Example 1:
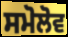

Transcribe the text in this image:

ਸਮੋਲੋਵ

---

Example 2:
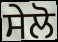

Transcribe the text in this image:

ਸੇਲੋ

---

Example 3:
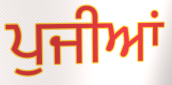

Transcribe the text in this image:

ਪੁਜੀਆਂ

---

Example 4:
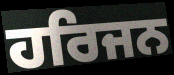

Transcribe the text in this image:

ਹਰਿਜਨ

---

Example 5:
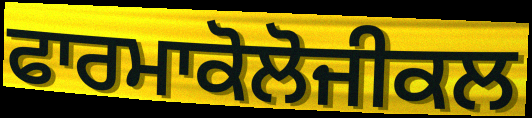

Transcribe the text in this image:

ਫਾਰਮਾਕੋਲੋਜੀਕਲ